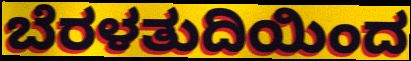
ಬೆರಳತುದಿಯಿಂದ